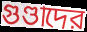
গুণ্ডাদের